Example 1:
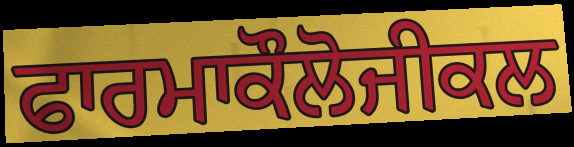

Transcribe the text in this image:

ਫਾਰਮਾਕੌਲੋਜੀਕਲ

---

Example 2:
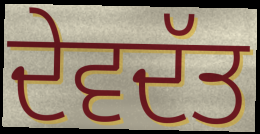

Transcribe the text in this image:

ਦੇਵਦੱਤ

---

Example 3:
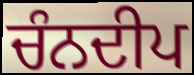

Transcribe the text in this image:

ਚੰਨਦੀਪ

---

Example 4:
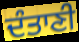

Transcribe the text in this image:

ਦੰਤਾਣੀ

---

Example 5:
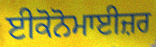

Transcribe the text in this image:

ਈਕੋਨੋਮਾਈਜ਼ਰ